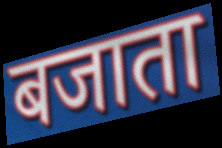
बजाता